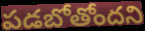
పడబోతోందని